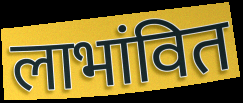
लाभांवित